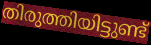
തിരുത്തിയിട്ടുണ്ട്